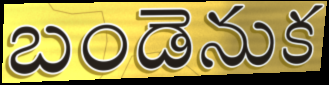
బండెనుక